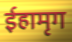
ईहामृग